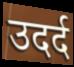
उदर्द